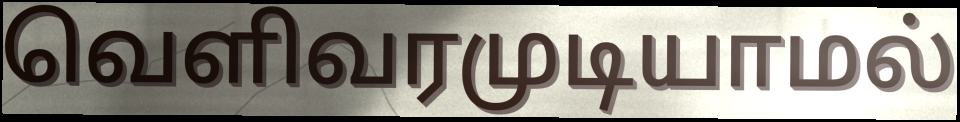
வெளிவரமுடியாமல்